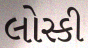
લોસ્કી